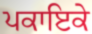
ਪਕਾਇਕੇ